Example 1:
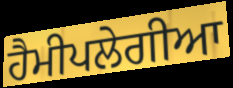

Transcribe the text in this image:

ਹੈਮੀਪਲੇਗੀਆ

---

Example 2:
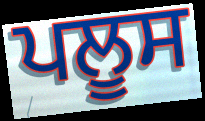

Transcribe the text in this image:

ਪਲੂਸ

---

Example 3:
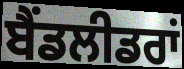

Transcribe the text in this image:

ਬੈਂਡਲੀਡਰਾਂ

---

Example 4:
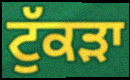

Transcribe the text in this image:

ਟੁੱਕੜਾ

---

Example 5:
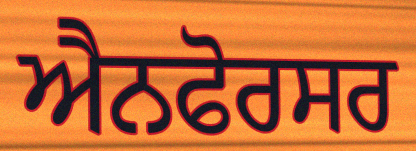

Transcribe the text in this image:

ਐਨਫੋਰਸਰ